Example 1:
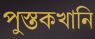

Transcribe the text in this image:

পুস্তকখানি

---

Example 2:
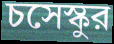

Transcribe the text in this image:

চসেস্কুর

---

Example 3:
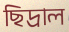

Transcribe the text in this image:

ছিদ্রাল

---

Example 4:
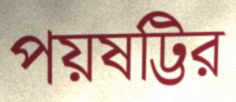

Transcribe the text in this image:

পয়ষট্টির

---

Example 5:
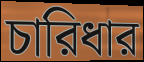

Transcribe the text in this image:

চারিধার